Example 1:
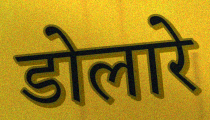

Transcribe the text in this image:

डोलारे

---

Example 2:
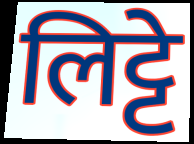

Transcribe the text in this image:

लिट्टे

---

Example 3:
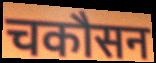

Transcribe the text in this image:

चकौसन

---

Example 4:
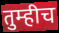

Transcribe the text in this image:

तुम्हीच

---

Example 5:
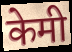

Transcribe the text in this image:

केमी